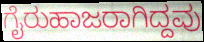
ಗೈರುಹಾಜರಾಗಿದ್ದವು